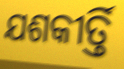
ଯଶକୀର୍ତ୍ତି